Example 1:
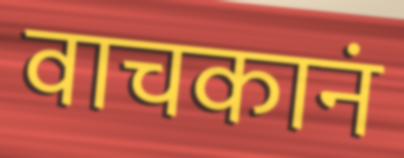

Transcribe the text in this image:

वाचकानं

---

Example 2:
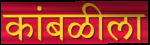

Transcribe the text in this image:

कांबळीला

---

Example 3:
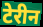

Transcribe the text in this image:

टेरीन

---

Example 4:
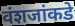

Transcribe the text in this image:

वंशजांकडे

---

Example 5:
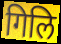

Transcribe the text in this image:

गिलि